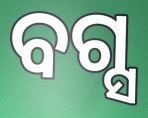
ବଗ୍ସ